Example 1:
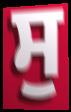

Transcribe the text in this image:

ਸੁ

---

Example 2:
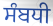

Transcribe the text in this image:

ਸੰਬਧੀ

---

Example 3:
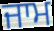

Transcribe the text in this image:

ਜਾਮ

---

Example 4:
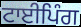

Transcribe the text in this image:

ਟਾਈਪਿੰਗ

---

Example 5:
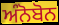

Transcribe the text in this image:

ਅੰਨੋਬੋਨ